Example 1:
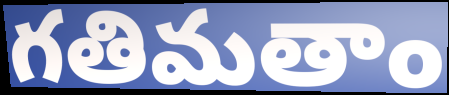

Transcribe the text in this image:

గతిమతాం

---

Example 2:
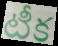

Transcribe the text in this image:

టీక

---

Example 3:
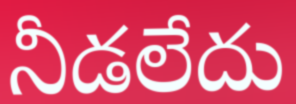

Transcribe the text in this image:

నీడలేదు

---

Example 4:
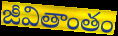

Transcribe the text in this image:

జీవితాంతం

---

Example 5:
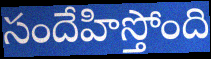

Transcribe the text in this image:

సందేహిస్తోంది